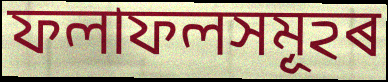
ফলাফলসমূহৰ